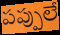
పప్పులే